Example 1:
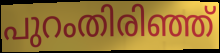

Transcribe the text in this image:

പുറംതിരിഞ്ഞ്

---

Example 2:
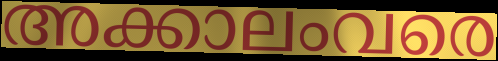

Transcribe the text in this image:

അക്കാലംവരെ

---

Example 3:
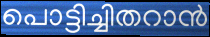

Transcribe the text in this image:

പൊട്ടിച്ചിതറാൻ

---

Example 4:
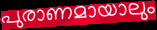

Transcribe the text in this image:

പുരാണമായാലും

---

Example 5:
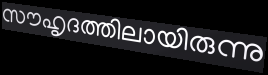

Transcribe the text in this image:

സൗഹൃദത്തിലായിരുന്നു